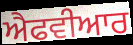
ਐਫਵੀਆਰ